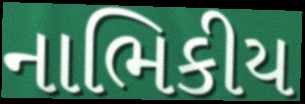
નાભિકીય